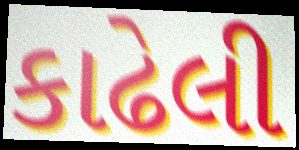
કાઢેલી